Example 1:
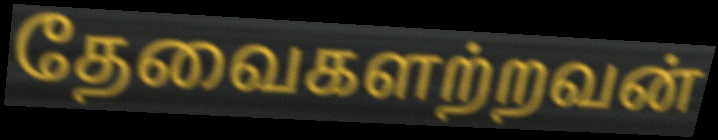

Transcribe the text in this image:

தேவைகளற்றவன்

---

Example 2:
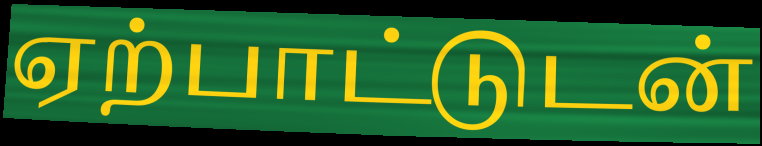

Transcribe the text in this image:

ஏற்பாட்டுடன்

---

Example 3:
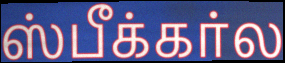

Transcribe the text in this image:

ஸ்பீக்கர்ல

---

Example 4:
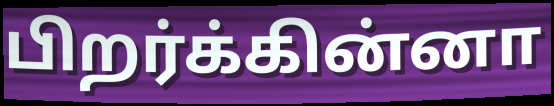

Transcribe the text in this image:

பிறர்க்கின்னா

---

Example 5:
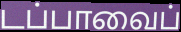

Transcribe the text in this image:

டப்பாவைப்